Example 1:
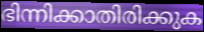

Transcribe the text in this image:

ഭിന്നിക്കാതിരിക്കുക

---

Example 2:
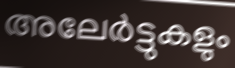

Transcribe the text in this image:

അലേർട്ടുകളും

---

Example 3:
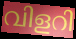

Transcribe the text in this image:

വിളറി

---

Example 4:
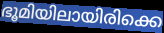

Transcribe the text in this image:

ഭൂമിയിലായിരിക്കെ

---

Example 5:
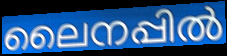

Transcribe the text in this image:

ലൈനപ്പിൽ